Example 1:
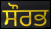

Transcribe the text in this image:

ਸੌਰਭ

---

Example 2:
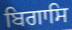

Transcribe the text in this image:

ਬਿਗਾਸਿ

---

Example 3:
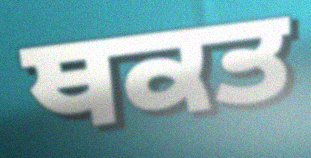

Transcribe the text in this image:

ਥਕਤ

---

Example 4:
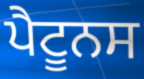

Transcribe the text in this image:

ਪੈਟੂਨਸ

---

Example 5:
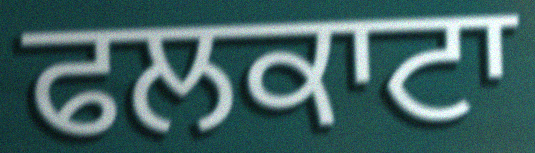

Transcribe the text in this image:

ਫਲਕਾਟਾ